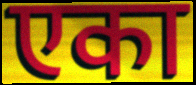
एका